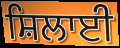
ਸ਼ਿਲਾਈ